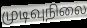
முடிவுநிலை